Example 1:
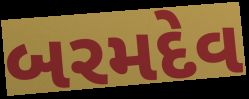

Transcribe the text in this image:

બરમદેવ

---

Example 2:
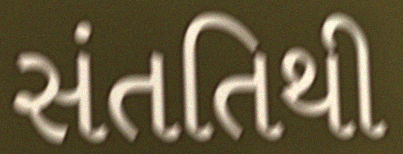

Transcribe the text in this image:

સંતતિથી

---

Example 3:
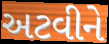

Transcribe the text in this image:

અટવીને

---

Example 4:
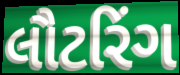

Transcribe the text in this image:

લૌટરિંગ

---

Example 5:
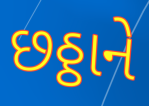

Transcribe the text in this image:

છઠ્ઠાને